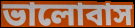
ভালোবাস